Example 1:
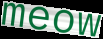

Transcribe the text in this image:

meow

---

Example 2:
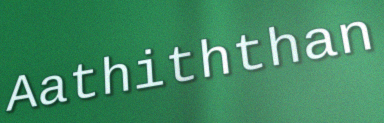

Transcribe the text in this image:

Aathiththan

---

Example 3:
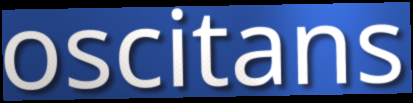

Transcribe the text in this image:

oscitans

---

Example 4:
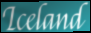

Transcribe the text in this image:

Iceland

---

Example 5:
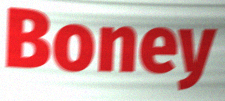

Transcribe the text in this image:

Boney